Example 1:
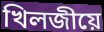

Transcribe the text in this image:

খিলজীয়ে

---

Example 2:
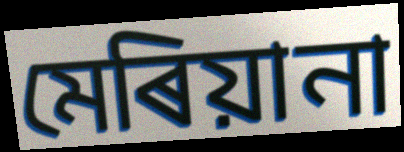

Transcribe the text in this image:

মেৰিয়ানা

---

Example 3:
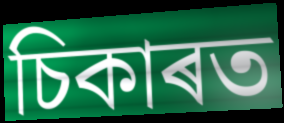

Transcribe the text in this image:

চিকাৰত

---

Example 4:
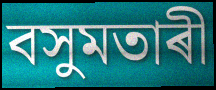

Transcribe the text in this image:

বসুমতাৰী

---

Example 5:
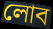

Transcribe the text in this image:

লোব